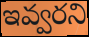
ఇవ్వరని